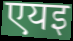
एयइ